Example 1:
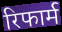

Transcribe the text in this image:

रिफार्म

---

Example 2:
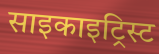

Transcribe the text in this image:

साइकाइट्रिस्ट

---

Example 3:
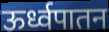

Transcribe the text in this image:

ऊर्ध्वपातन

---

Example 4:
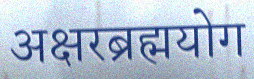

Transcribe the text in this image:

अक्षरब्रह्मयोग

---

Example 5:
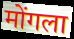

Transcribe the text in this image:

मोंगला